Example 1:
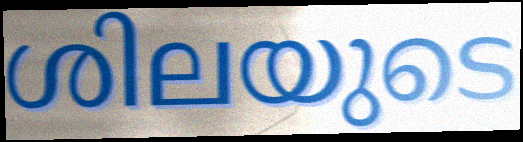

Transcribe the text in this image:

ശിലയുടെ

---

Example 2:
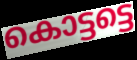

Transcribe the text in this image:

കൊട്ടട്ടെ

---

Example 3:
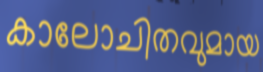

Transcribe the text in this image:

കാലോചിതവുമായ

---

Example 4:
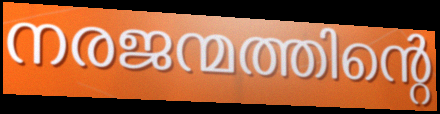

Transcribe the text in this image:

നരജന്മത്തിന്റെ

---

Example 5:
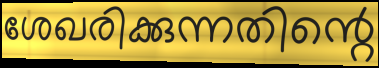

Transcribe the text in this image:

ശേഖരിക്കുന്നതിന്റെ